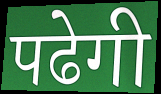
पढेगी